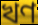
খণ